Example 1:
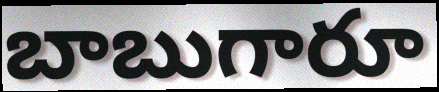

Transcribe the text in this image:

బాబుగారూ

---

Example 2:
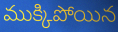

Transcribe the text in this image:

ముక్కిపోయిన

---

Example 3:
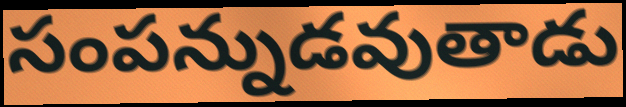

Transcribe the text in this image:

సంపన్నుడవుతాడు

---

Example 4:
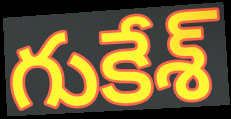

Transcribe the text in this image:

గుకేశ్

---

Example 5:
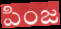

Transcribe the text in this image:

పింజ